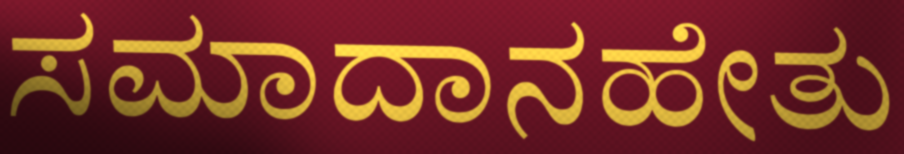
ಸಮಾದಾನಹೇತು